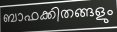
ബാഫക്കിതങ്ങളും